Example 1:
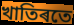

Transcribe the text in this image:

খাতিৰতে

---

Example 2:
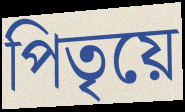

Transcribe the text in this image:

পিতৃয়ে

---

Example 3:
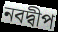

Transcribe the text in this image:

নবদ্বীপ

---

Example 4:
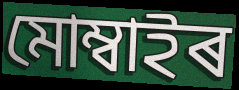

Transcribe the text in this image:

মোম্বাইৰ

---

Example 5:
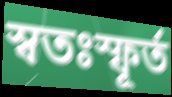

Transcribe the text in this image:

স্বতঃস্ফূৰ্ত